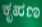
ಕೃಪಣ